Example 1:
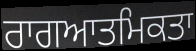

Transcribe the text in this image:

ਰਾਗਆਤਮਿਕਤਾ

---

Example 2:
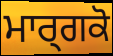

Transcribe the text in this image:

ਮਾਰ੍ਗਕੋ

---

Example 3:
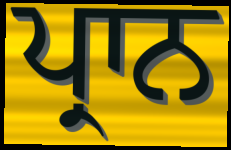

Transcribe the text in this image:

ਪ੍ਰਾਨ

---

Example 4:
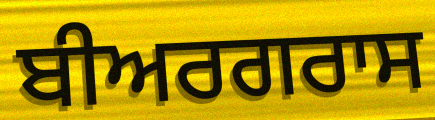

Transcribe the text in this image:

ਬੀਅਰਗਰਾਸ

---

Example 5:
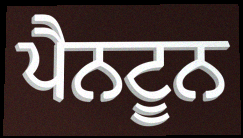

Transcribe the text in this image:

ਪੈਨਟੂਨ